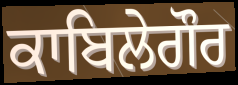
ਕਾਬਿਲੇਗੌਰ